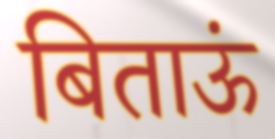
बिताऊं